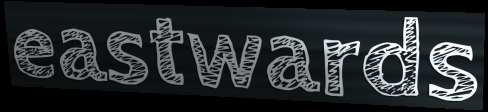
eastwards